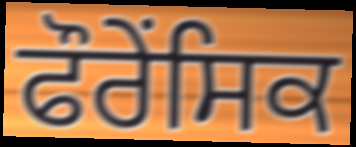
ਫੌਰੇਂਸਿਕ